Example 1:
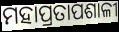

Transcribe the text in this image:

ମହାପ୍ରତାପଶାଳୀ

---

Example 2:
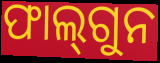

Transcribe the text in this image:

ଫାଲ୍‍ଗୁନ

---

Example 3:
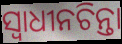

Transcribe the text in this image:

ସ୍ୱାଧୀନଚିନ୍ତା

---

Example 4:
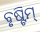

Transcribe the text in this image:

ବୃଷ୍ଟିମ୍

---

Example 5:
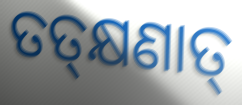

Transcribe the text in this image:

ତତ୍କ୍ଷଣାତ୍